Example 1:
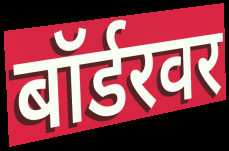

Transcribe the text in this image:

बॉर्डरवर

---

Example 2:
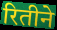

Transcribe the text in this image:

रितीने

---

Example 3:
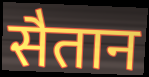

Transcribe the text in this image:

सैतान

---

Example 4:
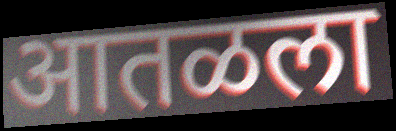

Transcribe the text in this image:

आतळला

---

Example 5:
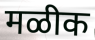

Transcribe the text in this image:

मळीक